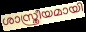
ശാസ്ത്രീയമായി